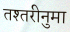
तश्तरीनुमा